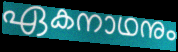
ഏകനാഥനും